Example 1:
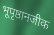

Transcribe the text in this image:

भूपृष्ठानजीक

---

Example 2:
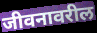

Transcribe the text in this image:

जीवनावरील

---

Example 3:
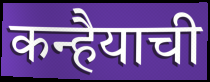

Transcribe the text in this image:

कन्हैयाची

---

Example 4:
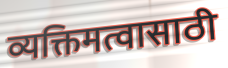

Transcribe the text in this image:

व्यक्तिमत्वासाठी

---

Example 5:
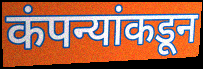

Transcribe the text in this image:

कंपन्यांकडून